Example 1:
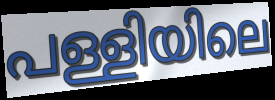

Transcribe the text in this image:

പള്ളിയിലെ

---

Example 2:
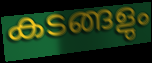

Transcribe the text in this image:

കടങ്ങളും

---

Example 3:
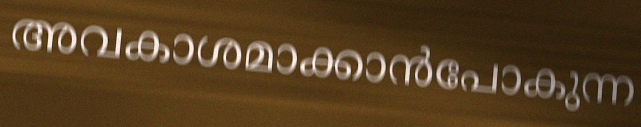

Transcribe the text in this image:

അവകാശമാക്കാൻപോകുന്ന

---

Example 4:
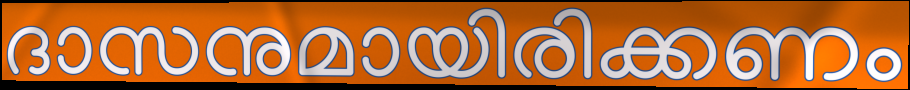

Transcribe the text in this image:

ദാസനുമായിരിക്കണം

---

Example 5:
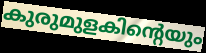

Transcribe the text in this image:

കുരുമുളകിന്റെയും